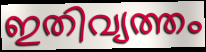
ഇതിവ്യത്തം